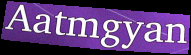
Aatmgyan